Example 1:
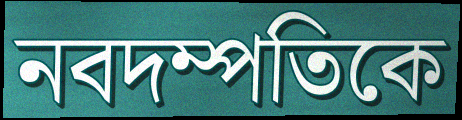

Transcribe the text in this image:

নবদম্পতিকে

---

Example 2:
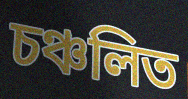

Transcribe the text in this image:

চঞ্চলিত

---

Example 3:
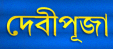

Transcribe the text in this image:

দেবীপূজা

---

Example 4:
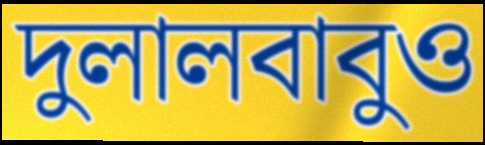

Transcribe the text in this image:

দুলালবাবুও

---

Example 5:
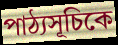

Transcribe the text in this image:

পাঠ্যসূচিকে